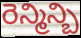
రెన్మిన్బి